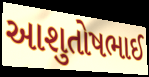
આશુતોષભાઈ